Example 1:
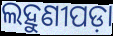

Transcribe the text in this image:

ଲହୁଣୀପଡ଼ା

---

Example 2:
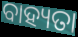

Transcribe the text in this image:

ବାହ୍ୟତା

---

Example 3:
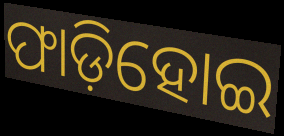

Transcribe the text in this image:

ଫାଡ଼ିହୋଇ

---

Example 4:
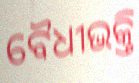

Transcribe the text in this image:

ବୈଧୀଭକ୍ତି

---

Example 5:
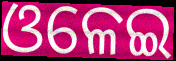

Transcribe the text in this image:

ଓଳେଇ